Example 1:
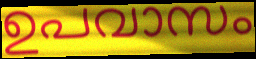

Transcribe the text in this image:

ഉപവാസം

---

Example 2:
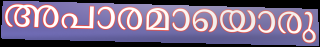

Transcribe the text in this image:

അപാരമായൊരു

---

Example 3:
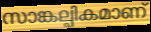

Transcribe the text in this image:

സാങ്കല്പികമാണ്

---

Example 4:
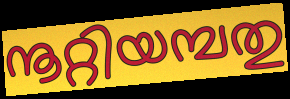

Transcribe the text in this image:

നൂറ്റിയമ്പതു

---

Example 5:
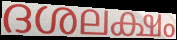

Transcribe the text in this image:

ദശലക്ഷം